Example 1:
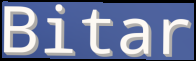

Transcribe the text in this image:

Bitar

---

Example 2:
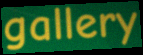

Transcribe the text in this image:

gallery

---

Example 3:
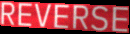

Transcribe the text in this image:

REVERSE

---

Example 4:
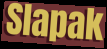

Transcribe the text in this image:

Slapak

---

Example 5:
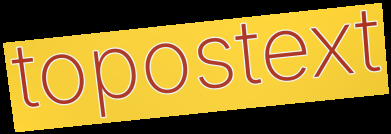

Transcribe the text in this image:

topostext